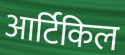
आर्टिकिल